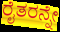
ರೈತರನ್ನೇ